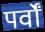
पर्वों